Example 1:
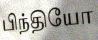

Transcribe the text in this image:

பிந்தியோ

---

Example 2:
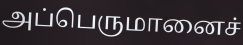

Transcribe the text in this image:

அப்பெருமானைச்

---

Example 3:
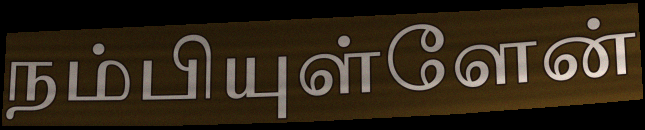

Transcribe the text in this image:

நம்பியுள்ளேன்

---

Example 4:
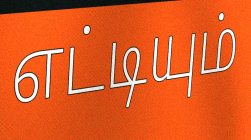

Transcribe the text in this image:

எட்டியும்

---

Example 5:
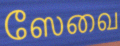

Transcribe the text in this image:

ஸேவை